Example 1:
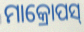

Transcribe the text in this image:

ମାକ୍ରୋପସ୍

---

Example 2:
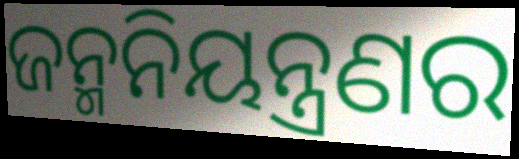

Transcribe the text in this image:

ଜନ୍ମନିୟନ୍ତ୍ରଣର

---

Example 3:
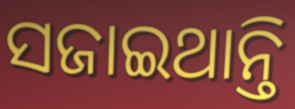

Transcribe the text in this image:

ସଜାଇଥାନ୍ତି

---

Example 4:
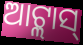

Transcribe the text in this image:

ଆଟ୍ଲାସ୍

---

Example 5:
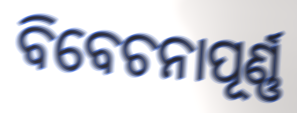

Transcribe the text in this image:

ବିବେଚନାପୂର୍ଣ୍ଣ